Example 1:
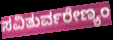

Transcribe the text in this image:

ಸವಿತುರ್ವರೇಣ್ಯಂ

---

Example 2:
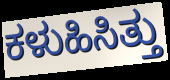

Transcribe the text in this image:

ಕಳುಹಿಸಿತ್ತು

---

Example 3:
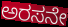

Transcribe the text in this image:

ಅರಸನೇ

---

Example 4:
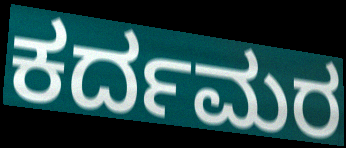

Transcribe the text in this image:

ಕರ್ದಮರ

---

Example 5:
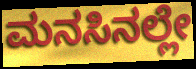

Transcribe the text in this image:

ಮನಸಿನಲ್ಲೇ